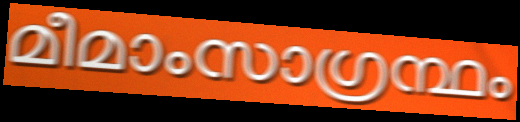
മീമാംസാഗ്രന്ഥം